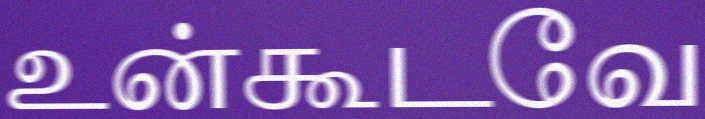
உன்கூடவே